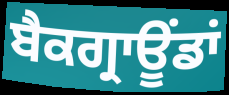
ਬੈਕਗ੍ਰਾਊਂਡਾਂ